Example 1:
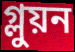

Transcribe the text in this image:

গ্লুয়ন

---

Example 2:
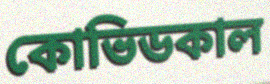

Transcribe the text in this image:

কোভিডকাল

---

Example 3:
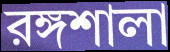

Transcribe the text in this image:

রঙ্গশালা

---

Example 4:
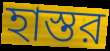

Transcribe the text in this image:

হাস্তর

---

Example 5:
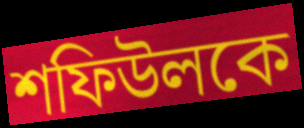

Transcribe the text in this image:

শফিউলকে